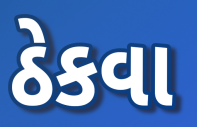
ઠેકવા